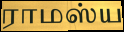
ராமஸ்ய